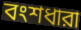
বংশধারা